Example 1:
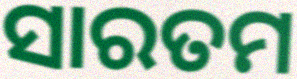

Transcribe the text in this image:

ସାରତମ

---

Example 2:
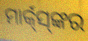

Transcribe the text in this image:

ମାର୍କ୍‍ସ୍‍ଙ୍କର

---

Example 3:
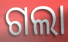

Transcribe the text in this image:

ଗଲା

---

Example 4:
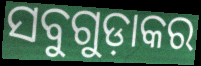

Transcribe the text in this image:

ସବୁଗୁଡ଼ାକର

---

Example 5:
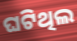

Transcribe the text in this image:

ଘଟିଥିଲ